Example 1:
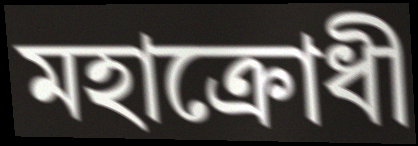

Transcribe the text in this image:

মহাক্রোধী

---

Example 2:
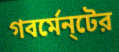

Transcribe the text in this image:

গবর্মেন্‌টের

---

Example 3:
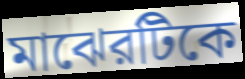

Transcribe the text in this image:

মাঝেরটিকে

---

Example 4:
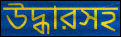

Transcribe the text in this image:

উদ্ধারসহ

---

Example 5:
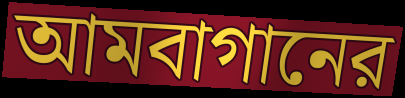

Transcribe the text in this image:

আমবাগানের